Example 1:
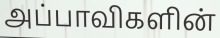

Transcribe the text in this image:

அப்பாவிகளின்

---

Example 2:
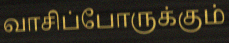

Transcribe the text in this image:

வாசிப்போருக்கும்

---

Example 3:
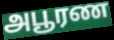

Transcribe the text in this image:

அபூரண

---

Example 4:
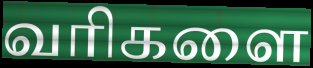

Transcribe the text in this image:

வரிகளை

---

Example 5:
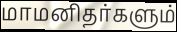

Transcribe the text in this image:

மாமனிதர்களும்